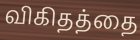
விகிதத்தை